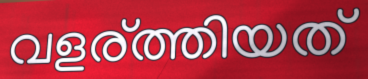
വളര്ത്തിയത്